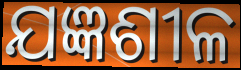
ଯଜ୍ଞଶୀଳ